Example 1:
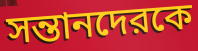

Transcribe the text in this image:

সন্তানদেরকে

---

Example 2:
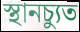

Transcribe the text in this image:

স্থানচ্যুত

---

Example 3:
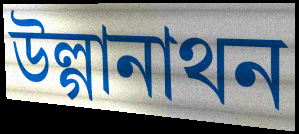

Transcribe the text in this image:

উল্গানাথন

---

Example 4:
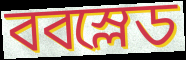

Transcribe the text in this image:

ববস্লেড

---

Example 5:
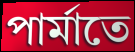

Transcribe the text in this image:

পার্মাতে